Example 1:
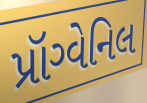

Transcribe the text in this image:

પ્રૉગ્વેનિલ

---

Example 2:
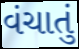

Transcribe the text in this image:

વંચાતું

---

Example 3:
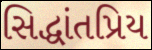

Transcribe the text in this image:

સિદ્ધાંતપ્રિય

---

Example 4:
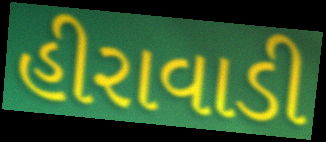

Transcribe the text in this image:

હીરાવાડી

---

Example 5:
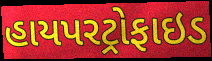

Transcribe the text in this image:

હાયપરટ્રોફાઇડ